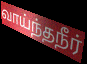
வாய்ந்தநீர்